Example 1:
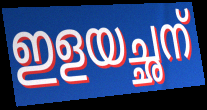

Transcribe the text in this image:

ഇളയച്ഛന്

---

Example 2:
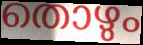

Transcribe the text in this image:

തൊഴും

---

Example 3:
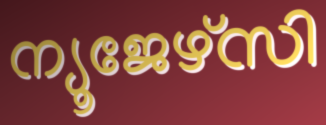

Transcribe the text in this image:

ന്യൂജേഴ്സി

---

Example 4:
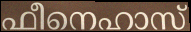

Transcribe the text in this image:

ഫീനെഹാസ്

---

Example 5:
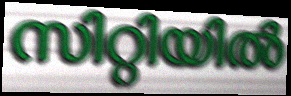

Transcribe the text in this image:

സിറ്റിയിൽ